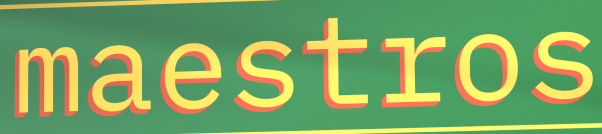
maestros